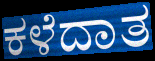
ಕಳೆದಾತ